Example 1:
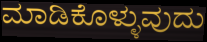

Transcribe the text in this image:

ಮಾಡಿಕೊಳ್ಳುವುದು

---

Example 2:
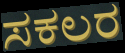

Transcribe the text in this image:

ಸಕಲರ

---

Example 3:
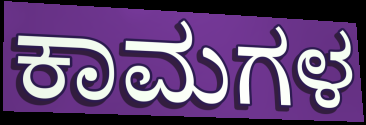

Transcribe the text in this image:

ಕಾಮಗಳ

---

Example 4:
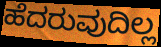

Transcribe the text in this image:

ಹೆದರುವುದಿಲ್ಲ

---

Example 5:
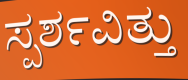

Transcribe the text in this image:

ಸ್ಪರ್ಶವಿತ್ತು